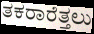
ತಕರಾರೆತ್ತಲು